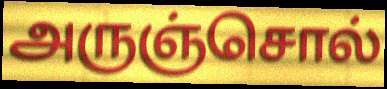
அருஞ்சொல்